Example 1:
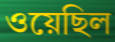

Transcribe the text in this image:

ওয়েছিল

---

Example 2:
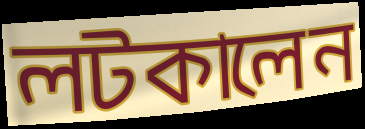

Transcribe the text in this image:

লটকালেন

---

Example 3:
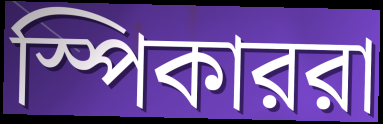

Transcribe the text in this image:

স্পিকাররা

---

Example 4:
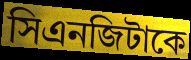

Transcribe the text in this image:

সিএনজিটাকে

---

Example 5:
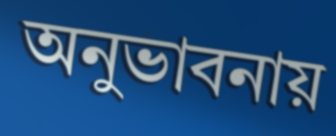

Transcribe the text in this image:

অনুভাবনায়